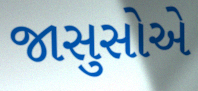
જાસુસોએ